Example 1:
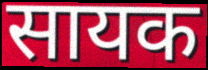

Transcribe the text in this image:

सायक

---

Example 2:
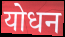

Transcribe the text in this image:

योधन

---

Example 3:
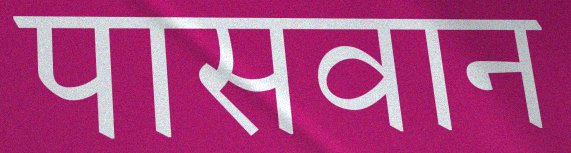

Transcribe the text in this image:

पासवान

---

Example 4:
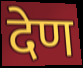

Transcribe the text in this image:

देण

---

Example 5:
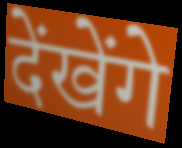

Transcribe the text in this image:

देंखेंगे